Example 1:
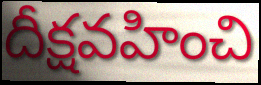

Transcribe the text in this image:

దీక్షవహించి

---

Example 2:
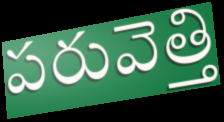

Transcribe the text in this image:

పరువెత్తి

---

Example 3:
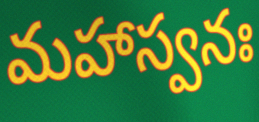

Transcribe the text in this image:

మహాస్వనః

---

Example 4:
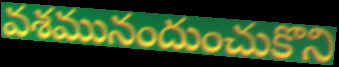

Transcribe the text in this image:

వశమునందుంచుకొని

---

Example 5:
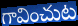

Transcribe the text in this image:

గావించుట